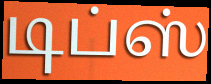
டிப்ஸ்